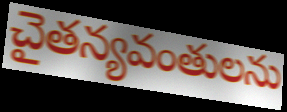
చైతన్యవంతులను